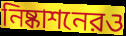
নিষ্কাশনেরও